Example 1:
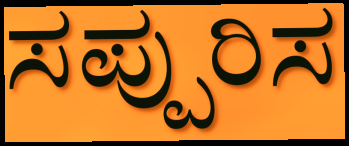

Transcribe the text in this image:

ಸಪ್ಪುರಿಸ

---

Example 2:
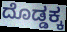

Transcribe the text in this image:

ದೊಡ್ಡಕ್ಕ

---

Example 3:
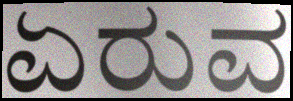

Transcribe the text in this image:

ಏರುವ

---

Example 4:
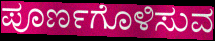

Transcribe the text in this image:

ಪೂರ್ಣಗೊಳಿಸುವ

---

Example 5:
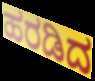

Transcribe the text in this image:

ಹರಡಿದ